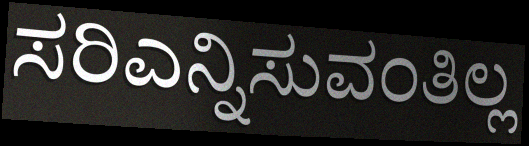
ಸರಿಎನ್ನಿಸುವಂತಿಲ್ಲ